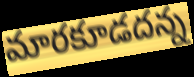
మారకూడదన్న